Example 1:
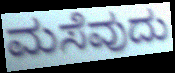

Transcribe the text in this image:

ಮಸೆವುದು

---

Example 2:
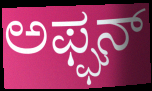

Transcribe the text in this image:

ಅಫ್ಘನ್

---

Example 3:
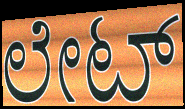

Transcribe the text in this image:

ಲೇಟ್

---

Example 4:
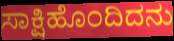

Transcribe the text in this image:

ಸಾಕ್ಷಿಹೊಂದಿದನು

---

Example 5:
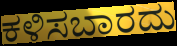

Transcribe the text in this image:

ಕಳಿಸಬಾರದು